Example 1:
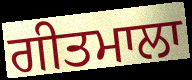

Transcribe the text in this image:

ਗੀਤਮਾਲਾ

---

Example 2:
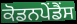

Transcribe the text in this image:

ਕੋਡਨਪੇਂਡੈਂਸ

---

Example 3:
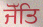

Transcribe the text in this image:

ਜੋੱਤਿ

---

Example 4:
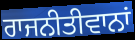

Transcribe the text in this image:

ਰਾਜਨੀਤੀਵਾਨਾਂ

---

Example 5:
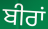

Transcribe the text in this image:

ਬੀਰਾਂ